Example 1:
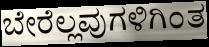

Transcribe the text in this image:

ಬೇರೆಲ್ಲವುಗಳಿಗಿಂತ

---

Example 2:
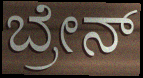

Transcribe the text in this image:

ಬ್ರೇನ್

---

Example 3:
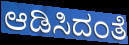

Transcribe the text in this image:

ಆಡಿಸಿದಂತೆ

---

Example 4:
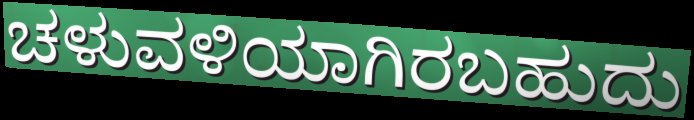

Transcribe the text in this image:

ಚಳುವಳಿಯಾಗಿರಬಹುದು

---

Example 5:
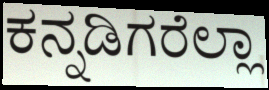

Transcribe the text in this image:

ಕನ್ನಡಿಗರೆಲ್ಲಾ